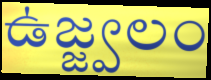
ఉజ్జ్వలం